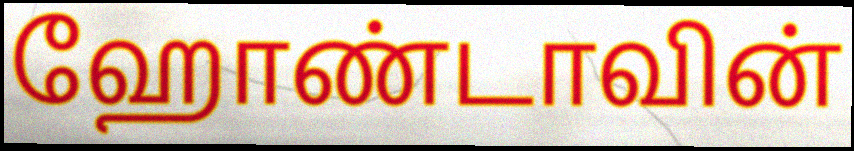
ஹோண்டாவின்